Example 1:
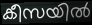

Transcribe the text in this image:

കീസയിൽ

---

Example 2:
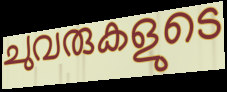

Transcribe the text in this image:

ചുവരുകളുടെ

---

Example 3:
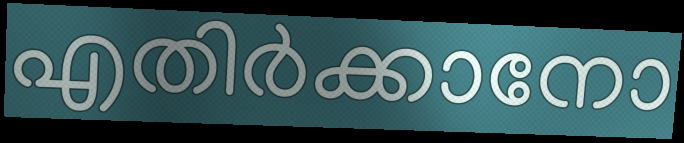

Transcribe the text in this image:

എതിർക്കാനോ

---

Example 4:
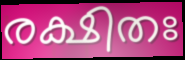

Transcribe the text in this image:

രക്ഷിതഃ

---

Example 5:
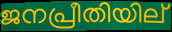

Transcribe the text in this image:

ജനപ്രീതിയില്